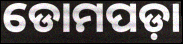
ଡୋମପଡ଼ା